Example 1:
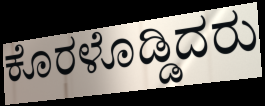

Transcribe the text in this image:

ಕೊರಳೊಡ್ಡಿದರು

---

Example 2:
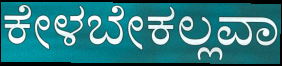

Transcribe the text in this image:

ಕೇಳಬೇಕಲ್ಲವಾ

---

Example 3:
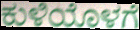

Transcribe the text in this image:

ಕುಳಿಯೊಳಗೆ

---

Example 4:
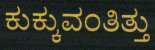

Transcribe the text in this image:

ಕುಕ್ಕುವಂತಿತ್ತು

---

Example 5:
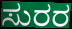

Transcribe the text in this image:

ಸುರರ